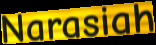
Narasiah